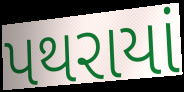
પથરાયાં